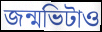
জন্মভিটাও